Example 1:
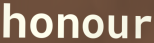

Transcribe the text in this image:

honour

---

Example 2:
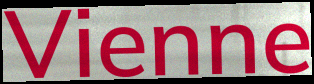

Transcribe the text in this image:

Vienne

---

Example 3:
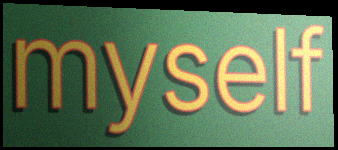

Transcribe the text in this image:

myself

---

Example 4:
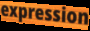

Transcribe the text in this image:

expression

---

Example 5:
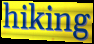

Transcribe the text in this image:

hiking